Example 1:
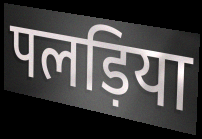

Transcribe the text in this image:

पलड़िया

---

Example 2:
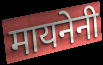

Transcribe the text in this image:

मायनेनी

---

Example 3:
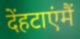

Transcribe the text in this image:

देंहटाएंमैं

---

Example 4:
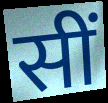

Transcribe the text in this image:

सीं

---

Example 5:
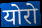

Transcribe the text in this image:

योरो